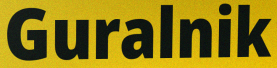
Guralnik